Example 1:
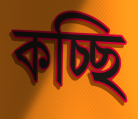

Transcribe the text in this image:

কচ্ছি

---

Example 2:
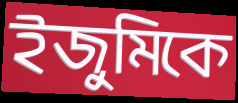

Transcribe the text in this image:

ইজুমিকে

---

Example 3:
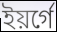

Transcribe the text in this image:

ইয়র্গে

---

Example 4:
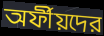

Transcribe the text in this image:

অর্ফীয়দের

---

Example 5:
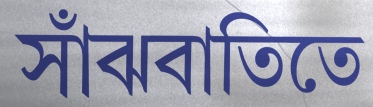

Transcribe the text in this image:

সাঁঝবাতিতে